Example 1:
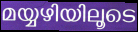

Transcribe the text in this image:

മയ്യഴിയിലൂടെ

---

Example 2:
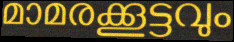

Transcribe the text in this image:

മാമരക്കൂട്ടവും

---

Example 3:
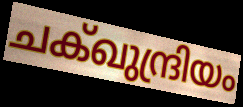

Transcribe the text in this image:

ചക്ഖുന്ദ്രിയം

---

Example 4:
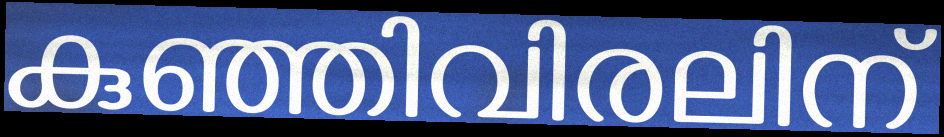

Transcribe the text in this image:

കുഞ്ഞിവിരലിന്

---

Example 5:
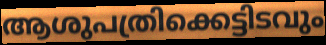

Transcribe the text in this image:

ആശുപത്രിക്കെട്ടിടവും